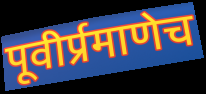
पूवीर्प्रमाणेच